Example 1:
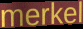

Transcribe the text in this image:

merkel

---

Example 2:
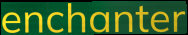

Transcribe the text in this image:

enchanter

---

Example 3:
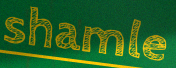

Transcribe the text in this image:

shamle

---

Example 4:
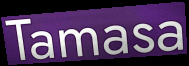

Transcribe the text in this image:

Tamasa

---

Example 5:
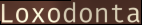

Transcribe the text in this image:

Loxodonta